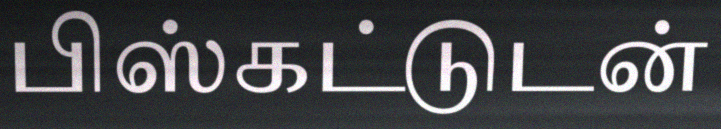
பிஸ்கட்டுடன்